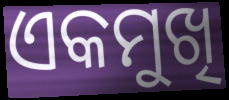
ଏକମୁଖି